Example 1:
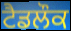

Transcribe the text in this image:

ਟੈਡਲੌਕ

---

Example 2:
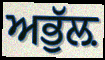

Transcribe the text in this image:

ਅਭੁੱਲ਼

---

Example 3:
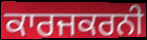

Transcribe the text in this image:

ਕਾਰਜਕਰਨੀ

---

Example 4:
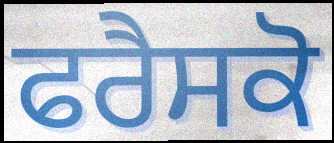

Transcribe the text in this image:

ਫਰੈਸਕੋ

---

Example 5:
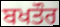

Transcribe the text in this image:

ਬਖਤੌਰ